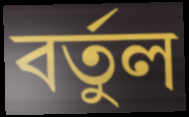
বর্তুল